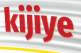
kijiye